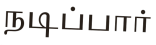
நடிப்பார்